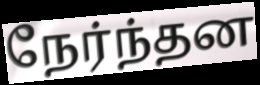
நேர்ந்தன